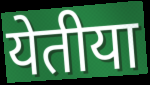
येतीया